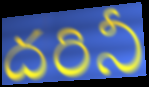
దరినీ